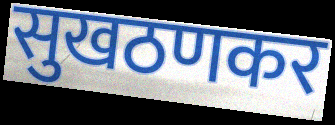
सुखठणकर